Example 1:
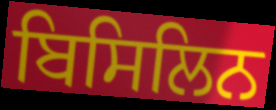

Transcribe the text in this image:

ਬਿਸਿਲਿਨ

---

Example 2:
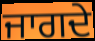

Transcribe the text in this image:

ਜਾਗਦੇ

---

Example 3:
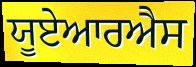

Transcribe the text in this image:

ਯੂਏਆਰਐਸ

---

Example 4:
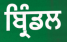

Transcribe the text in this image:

ਬ੍ਰਿੰਡਲ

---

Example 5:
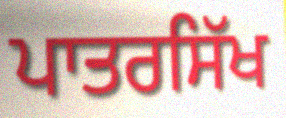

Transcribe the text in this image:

ਪਾਤਰਸਿੱਖ